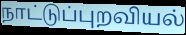
நாட்டுப்புறவியல்